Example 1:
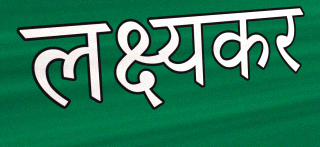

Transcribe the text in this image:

लक्ष्यकर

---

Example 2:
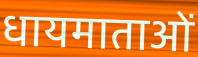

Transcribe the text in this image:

धायमाताओं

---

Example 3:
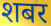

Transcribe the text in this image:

शबर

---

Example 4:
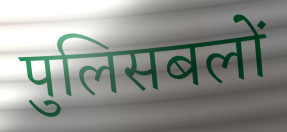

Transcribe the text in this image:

पुलिसबलों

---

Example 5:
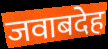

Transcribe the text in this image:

जवाबदेह